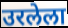
उरलेला